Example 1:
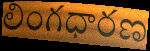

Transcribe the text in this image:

లింగధారణ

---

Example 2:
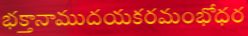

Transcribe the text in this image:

భక్తానాముదయకరమంభోధర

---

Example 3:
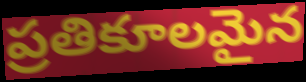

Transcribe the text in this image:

ప్రతికూలమైన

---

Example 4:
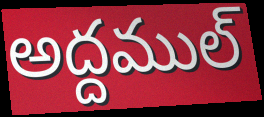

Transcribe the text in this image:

అద్దముల్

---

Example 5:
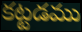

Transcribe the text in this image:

కట్టడము